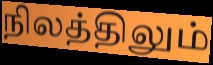
நிலத்திலும்